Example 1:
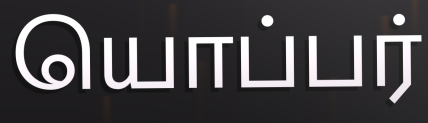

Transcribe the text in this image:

யொப்பர்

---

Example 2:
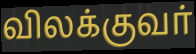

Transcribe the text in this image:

விலக்குவர்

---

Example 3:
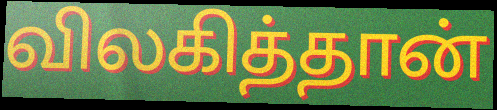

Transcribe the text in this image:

விலகித்தான்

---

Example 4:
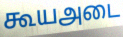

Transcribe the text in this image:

கூயஅடை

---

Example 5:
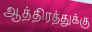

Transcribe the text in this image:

ஆத்திரத்துக்கு